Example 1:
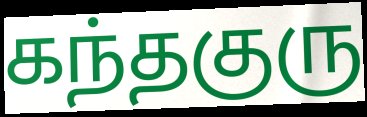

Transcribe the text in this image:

கந்தகுரு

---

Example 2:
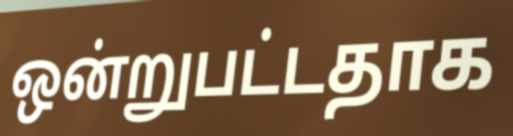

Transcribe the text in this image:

ஒன்றுபட்டதாக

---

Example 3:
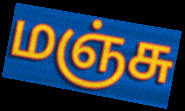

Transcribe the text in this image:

மஞ்சு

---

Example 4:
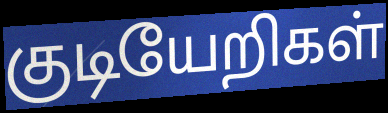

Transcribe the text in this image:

குடியேறிகள்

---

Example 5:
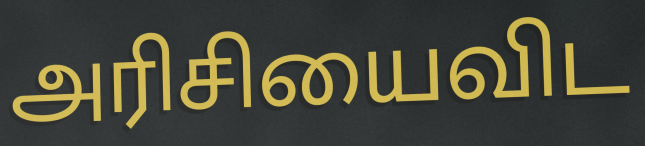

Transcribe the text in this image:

அரிசியைவிட